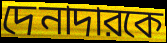
দেনাদারকে